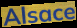
Alsace